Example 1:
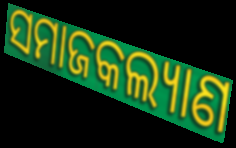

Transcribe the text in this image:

ସମାଜକଲ୍ୟାଣ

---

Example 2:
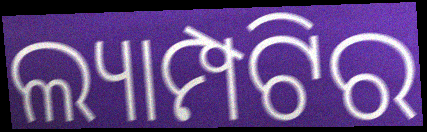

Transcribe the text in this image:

ଲ୍ୟାମ୍ପଟିର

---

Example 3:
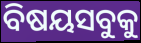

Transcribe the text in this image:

ବିଷୟସବୁକୁ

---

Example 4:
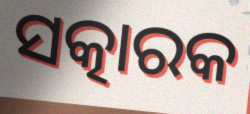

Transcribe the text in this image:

ସତ୍କାରକ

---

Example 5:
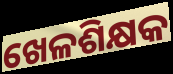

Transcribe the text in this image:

ଖେଳଶିକ୍ଷକ